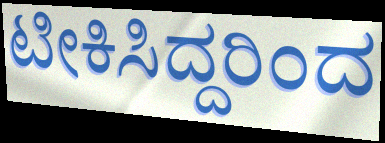
ಟೀಕಿಸಿದ್ದರಿಂದ